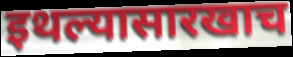
इथल्यासारखाच